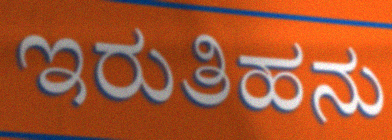
ಇರುತಿಹನು